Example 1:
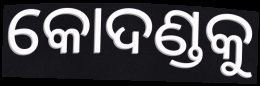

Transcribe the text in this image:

କୋଦଣ୍ଡକୁ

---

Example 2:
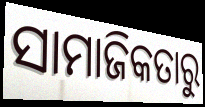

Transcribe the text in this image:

ସାମାଜିକତାରୁ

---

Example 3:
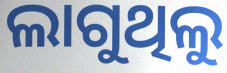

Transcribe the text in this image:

ଲାଗୁଥିଲୁ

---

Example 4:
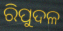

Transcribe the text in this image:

ରିପୁଦଳ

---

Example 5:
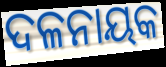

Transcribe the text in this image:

ଦଳନାୟକ